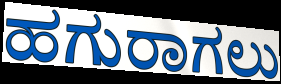
ಹಗುರಾಗಲು